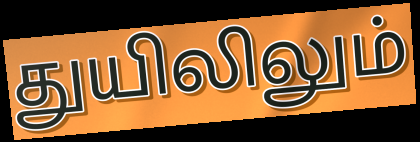
துயிலிலும்